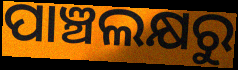
ପାଞ୍ଚଲକ୍ଷରୁ